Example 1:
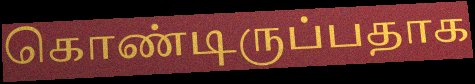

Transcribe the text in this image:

கொண்டிருப்பதாக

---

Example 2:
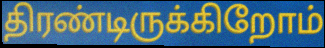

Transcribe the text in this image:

திரண்டிருக்கிறோம்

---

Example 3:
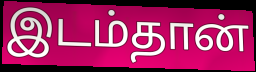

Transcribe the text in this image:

இடம்தான்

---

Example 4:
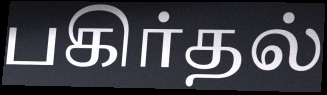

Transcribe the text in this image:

பகிர்தல்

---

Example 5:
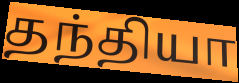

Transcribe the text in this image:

தந்தியா